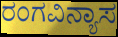
ರಂಗವಿನ್ಯಾಸ